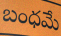
బంధమే